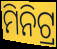
ମିନିଟ୍ର